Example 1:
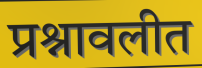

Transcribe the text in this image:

प्रश्नावलीत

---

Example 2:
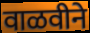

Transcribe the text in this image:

वाळवीने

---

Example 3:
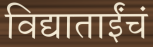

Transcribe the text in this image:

विद्याताईंचं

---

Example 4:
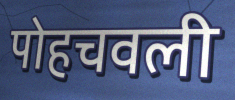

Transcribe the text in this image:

पोहचवली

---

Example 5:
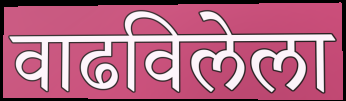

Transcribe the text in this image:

वाढविलेला